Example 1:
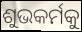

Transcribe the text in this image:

ଶୁଭକର୍ମକୁ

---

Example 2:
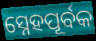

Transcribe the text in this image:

ସ୍ନେହପୂର୍ବକ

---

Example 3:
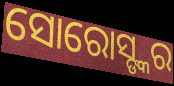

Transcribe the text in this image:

ସୋରୋସ୍ଙ୍କର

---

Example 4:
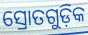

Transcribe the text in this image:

ସ୍ରୋତଗୁଡ଼ିକ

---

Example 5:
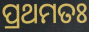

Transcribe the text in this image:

ପ୍ରଥମତଃ